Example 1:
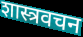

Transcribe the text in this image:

शास्त्रवचन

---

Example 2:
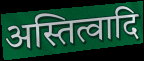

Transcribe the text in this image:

अस्तित्वादि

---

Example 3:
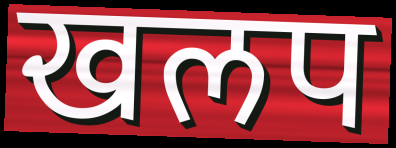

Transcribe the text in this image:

खलप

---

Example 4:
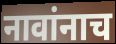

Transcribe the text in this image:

नावांनाच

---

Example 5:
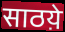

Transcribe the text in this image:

साठय़े